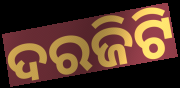
ଦରଜିଟି